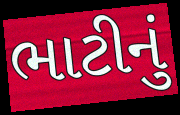
ભાટીનું